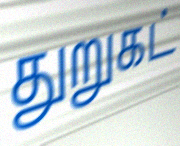
துறுகட்